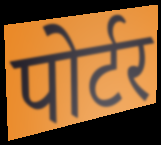
पोर्टर